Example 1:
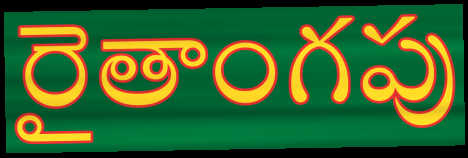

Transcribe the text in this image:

రైతాంగపు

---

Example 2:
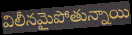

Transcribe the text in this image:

విలీనమైపోతున్నాయి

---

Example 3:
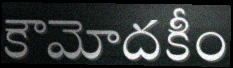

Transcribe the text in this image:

కౌమోదకీం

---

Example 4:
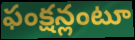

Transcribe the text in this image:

ఫంక్షన్లంటూ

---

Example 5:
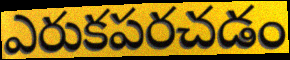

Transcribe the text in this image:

ఎరుకపరచడం